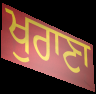
ਖੁਰਾਣਾ